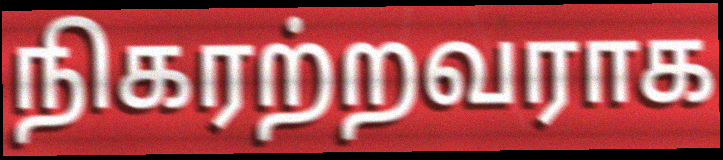
நிகரற்றவராக